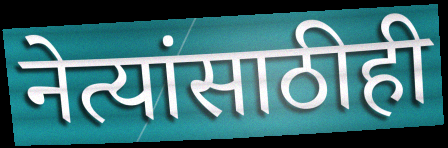
नेत्यांसाठीही